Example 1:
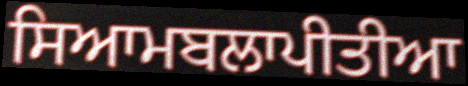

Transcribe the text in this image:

ਸਿਆਮਬਲਾਪੀਤੀਆ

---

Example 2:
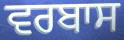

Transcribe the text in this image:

ਵਰਬਾਸ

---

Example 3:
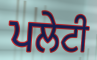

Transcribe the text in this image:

ਪਲੇਟੀ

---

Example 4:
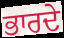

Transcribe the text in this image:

ਭਾਰਦੇ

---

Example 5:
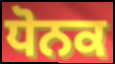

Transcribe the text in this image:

ਧੋਨਕ